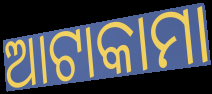
ଆଟାକାମା